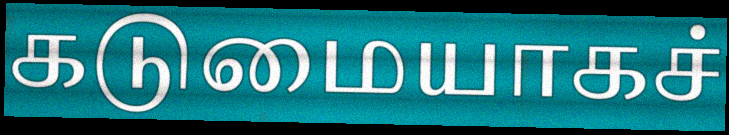
கடுமையாகச்